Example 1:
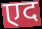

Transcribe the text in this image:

एद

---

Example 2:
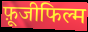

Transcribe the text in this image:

फ़ूजीफिल्म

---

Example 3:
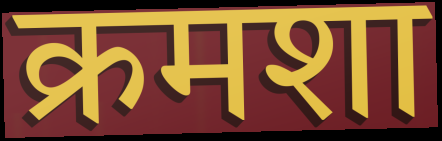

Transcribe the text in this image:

क्रमशा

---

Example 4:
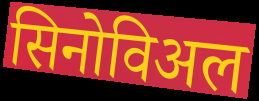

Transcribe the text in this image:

सिनोविअल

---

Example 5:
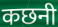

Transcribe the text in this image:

कछनी